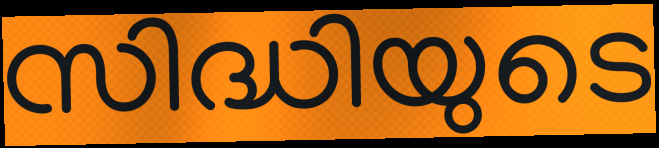
സിദ്ധിയുടെ